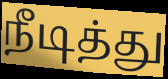
நீடித்து